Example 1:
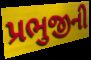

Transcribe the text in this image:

પ્રભુજીની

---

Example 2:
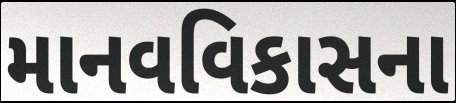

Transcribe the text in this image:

માનવવિકાસના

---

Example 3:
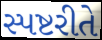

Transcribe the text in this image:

સ્પષ્ટરીતે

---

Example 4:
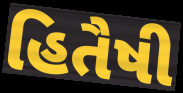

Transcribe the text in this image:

હિતૈષી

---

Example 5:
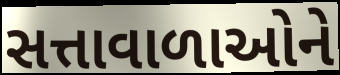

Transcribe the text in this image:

સત્તાવાળાઓને